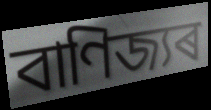
বাণিজ্যৰ